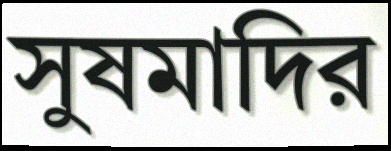
সুষমাদির